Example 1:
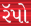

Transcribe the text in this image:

રૅપો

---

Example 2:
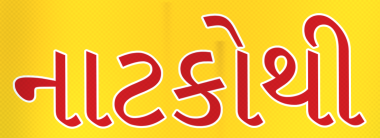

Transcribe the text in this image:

નાટકોથી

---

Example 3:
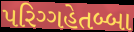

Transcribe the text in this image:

પરિગ્ગહેતબ્બા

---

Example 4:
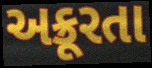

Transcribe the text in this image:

અક્રૂરતા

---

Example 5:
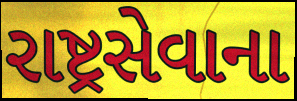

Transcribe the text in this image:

રાષ્ટ્રસેવાના